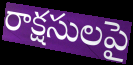
రాక్షసులపై